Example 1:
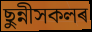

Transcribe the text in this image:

ছুন্নীসকলৰ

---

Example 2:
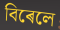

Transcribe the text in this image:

বিৰেলে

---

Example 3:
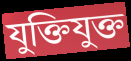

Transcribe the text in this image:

যুক্তিযুক্ত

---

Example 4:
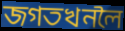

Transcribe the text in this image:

জগতখনলৈ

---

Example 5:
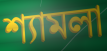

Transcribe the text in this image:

শ্যামলা